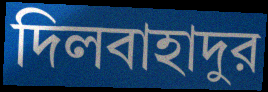
দিলবাহাদুর